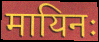
मायिनः